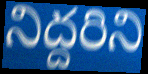
నిద్దరిని